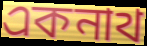
একনাথ